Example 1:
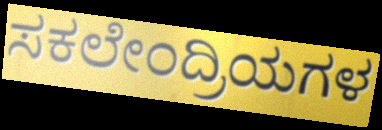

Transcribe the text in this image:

ಸಕಲೇಂದ್ರಿಯಗಳ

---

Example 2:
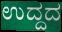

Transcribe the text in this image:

ಉದ್ದದ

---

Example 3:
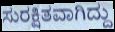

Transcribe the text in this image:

ಸುರಕ್ಷಿತವಾಗಿದ್ದು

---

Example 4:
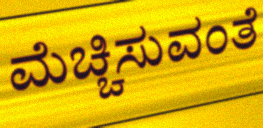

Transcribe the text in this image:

ಮೆಚ್ಚಿಸುವಂತೆ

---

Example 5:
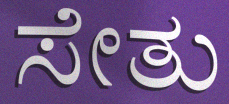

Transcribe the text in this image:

ಸೇತು